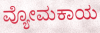
ವ್ಯೋಮಕಾಯ